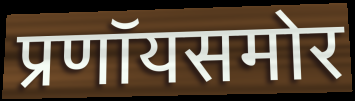
प्रणॉयसमोर